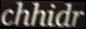
chhidr